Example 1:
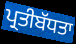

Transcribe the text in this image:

ਪ੍ਰਤੀਬੱਧਤਾ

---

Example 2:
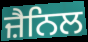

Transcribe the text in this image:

ਜ਼ੈਨਿਲ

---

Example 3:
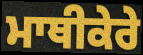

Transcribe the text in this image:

ਮਾਥੀਕੇਰੇ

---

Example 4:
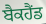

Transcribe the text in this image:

ਬੈਕਹੈਂਡ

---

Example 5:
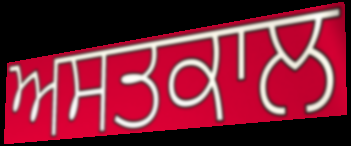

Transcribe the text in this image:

ਅਸਤਕਾਲ